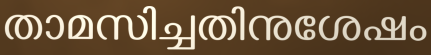
താമസിച്ചതിനുശേഷം